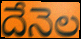
దేనెల